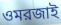
ওমরজাই